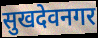
सुखदेवनगर